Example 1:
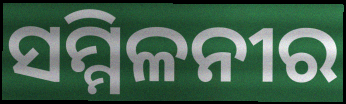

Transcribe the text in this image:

ସମ୍ମିଳନୀର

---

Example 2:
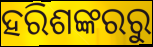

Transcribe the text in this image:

ହରିଶଙ୍କରରୁ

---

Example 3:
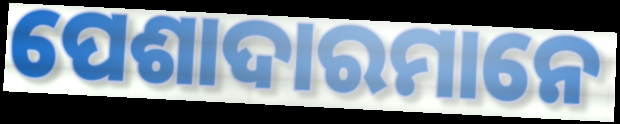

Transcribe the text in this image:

ପେଶାଦାରମାନେ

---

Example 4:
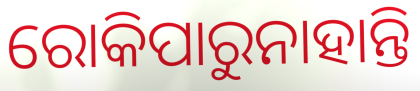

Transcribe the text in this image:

ରୋକିପାରୁନାହାନ୍ତି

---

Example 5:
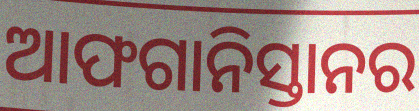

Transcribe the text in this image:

ଆଫଗାନିସ୍ତାନର